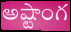
అష్టాంగ